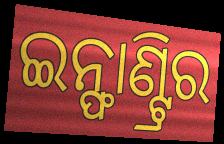
ଇନ୍ଫାଣ୍ଟ୍ରିର